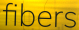
fibers